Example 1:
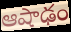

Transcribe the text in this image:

ఆషాఢం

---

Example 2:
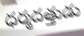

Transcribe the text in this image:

ధర్మదత్తుడు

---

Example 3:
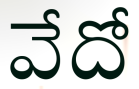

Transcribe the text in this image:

వేదో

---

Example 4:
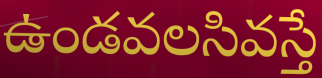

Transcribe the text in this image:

ఉండవలసివస్తే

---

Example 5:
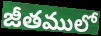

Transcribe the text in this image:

జీతములో